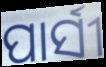
ପାର୍ସୀ